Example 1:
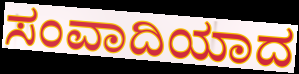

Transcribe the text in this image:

ಸಂವಾದಿಯಾದ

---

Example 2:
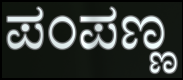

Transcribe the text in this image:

ಪಂಪಣ್ಣ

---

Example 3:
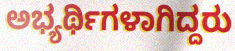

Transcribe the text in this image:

ಅಭ್ಯರ್ಥಿಗಳಾಗಿದ್ದರು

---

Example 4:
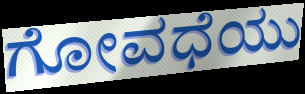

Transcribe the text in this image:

ಗೋವಧೆಯು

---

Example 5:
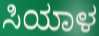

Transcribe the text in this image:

ಸಿಯಾಳ